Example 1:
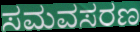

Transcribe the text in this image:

ಸಮವಸರಣ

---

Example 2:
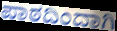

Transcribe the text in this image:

ಪಾಠದಿಂದಾಗಿ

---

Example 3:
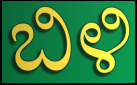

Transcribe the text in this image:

ಬಿಳಿ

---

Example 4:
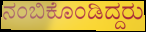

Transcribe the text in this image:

ನಂಬಿಕೊಂಡಿದ್ದರು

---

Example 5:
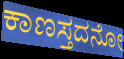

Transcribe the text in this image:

ಕಾಣಸ್ತದನೋ